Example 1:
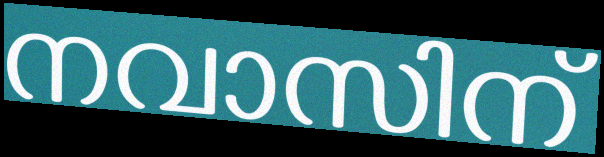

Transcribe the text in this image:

നവാസിന്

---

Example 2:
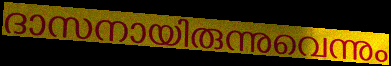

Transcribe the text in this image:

ദാസനായിരുന്നുവെന്നും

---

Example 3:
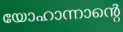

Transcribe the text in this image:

യോഹാന്നാന്റെ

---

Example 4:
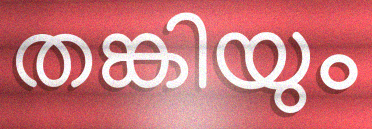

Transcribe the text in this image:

തങ്കിയും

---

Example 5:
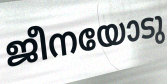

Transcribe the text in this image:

ജീനയോടു